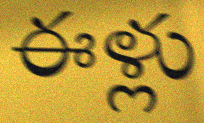
ఈళ్లు